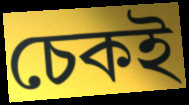
চেকই